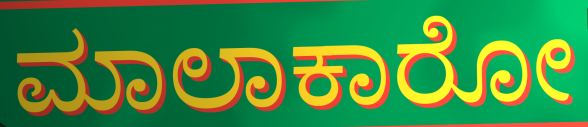
ಮಾಲಾಕಾರೋ